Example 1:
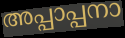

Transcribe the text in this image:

അപ്പാപ്പനാ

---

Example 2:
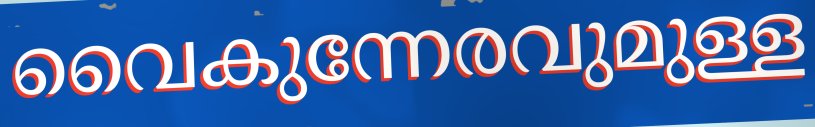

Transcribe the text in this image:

വൈകുന്നേരവുമുള്ള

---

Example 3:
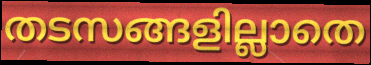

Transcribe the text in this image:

തടസങ്ങളില്ലാതെ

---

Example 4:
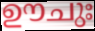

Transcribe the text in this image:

ഊചുഃ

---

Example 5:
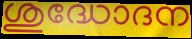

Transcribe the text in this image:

ശുദ്ധോദന